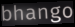
bhango